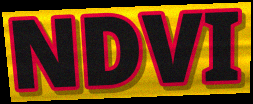
NDVI